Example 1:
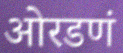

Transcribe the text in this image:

ओरडणं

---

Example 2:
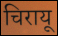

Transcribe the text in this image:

चिरायू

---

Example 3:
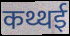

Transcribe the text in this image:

कथ्थई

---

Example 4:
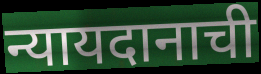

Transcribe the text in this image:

न्यायदानाची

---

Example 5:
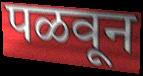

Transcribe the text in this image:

पळवून